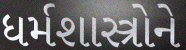
ધર્મશાસ્ત્રોને